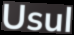
Usul